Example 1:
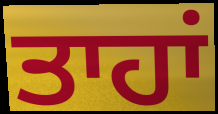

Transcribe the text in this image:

ਤਾਹਾਂ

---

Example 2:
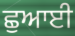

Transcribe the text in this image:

ਛੁਆਈ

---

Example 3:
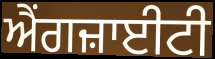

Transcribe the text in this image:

ਐਂਗਜ਼ਾਈਟੀ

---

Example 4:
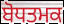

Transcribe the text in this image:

ਬੋਧਤਮਕ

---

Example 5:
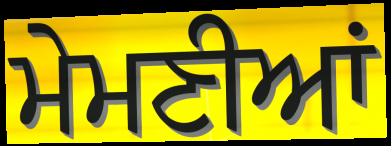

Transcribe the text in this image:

ਮੇਮਣੀਆਂ